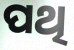
ପଥି